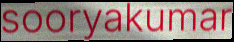
sooryakumar